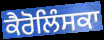
ਕੈਰੋਲਿੰਸਕਾ